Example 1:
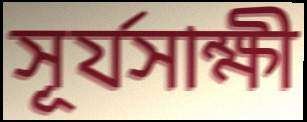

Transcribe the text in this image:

সূর্যসাক্ষী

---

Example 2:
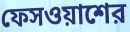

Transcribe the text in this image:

ফেসওয়াশের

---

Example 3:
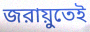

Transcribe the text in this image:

জরায়ুতেই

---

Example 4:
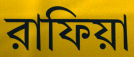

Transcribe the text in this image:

রাফিয়া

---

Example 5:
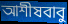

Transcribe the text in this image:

আশীষবাবু